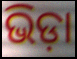
ଭିଡ଼ା